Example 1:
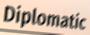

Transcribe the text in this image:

Diplomatic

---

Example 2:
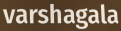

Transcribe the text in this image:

varshagala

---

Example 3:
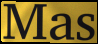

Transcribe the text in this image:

Mas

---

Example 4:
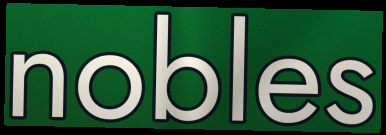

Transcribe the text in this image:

nobles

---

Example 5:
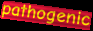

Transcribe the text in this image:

pathogenic